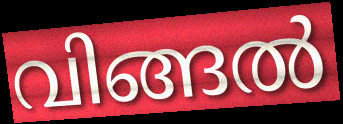
വിങ്ങൽ